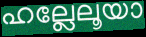
ഹല്ലേലൂയാ